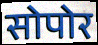
सोपोर